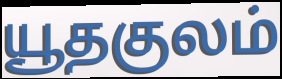
யூதகுலம்